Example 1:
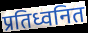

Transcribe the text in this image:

प्रतिध्वनित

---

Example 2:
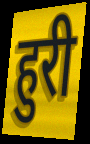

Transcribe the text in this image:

हुरी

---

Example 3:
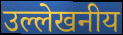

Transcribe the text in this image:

उल्लेखनीय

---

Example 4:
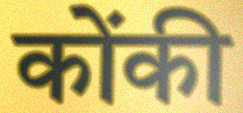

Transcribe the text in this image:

कोंकी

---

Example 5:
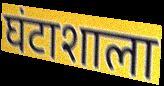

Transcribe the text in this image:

घंटाशाला